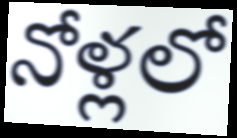
నోళ్లలో